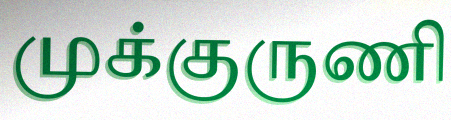
முக்குருணி